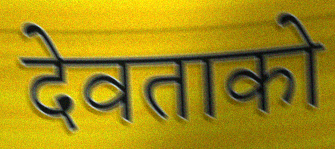
देवताको